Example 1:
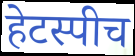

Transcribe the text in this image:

हेटस्पीच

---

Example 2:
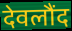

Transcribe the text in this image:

देवलौंद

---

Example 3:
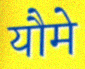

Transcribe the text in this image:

यौमे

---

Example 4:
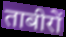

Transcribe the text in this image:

ताबीरों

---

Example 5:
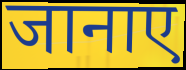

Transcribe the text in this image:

जानाए